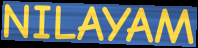
NILAYAM